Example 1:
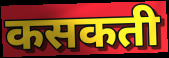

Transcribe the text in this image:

कसकती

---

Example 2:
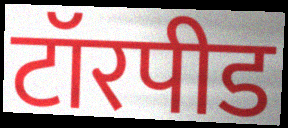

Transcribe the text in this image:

टॉरपीड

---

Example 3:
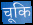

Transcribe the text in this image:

चूकि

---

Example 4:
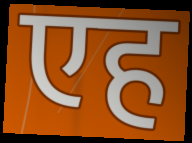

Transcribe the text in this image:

एह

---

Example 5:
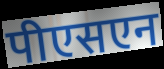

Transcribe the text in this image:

पीएसएन